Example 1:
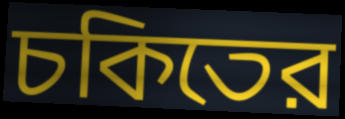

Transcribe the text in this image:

চকিতের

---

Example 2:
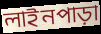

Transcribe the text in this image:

লাইনপাড়া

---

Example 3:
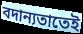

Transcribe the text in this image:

বদান্যতাতেই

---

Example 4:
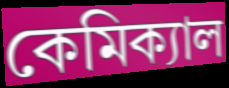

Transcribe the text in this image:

কেমিক্যাল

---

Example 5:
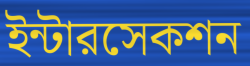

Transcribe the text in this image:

ইন্টারসেকশন